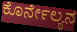
ಕೊರ್ನೇಲ್ಯನ